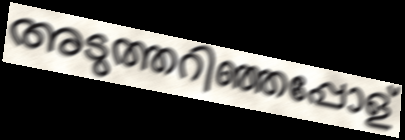
അടുത്തറിഞ്ഞപ്പോള്